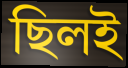
ছিলই